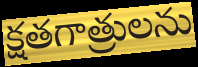
క్షతగాత్రులను